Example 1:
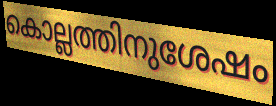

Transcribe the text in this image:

കൊല്ലത്തിനുശേഷം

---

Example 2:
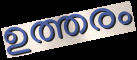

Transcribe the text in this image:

ഉത്തരം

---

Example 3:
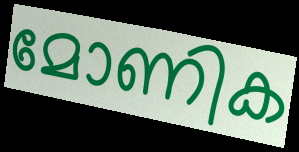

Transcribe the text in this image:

മോണിക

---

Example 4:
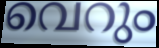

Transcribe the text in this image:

വെറും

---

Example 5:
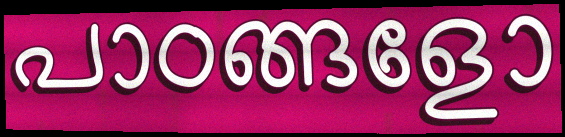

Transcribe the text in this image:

പാഠങ്ങളോ